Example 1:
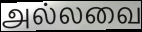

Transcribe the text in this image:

அல்லவை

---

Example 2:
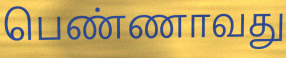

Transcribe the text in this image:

பெண்ணாவது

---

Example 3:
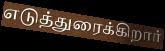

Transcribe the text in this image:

எடுத்துரைக்கிறார்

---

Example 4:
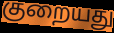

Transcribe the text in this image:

குறையது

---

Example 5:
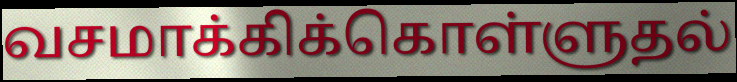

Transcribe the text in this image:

வசமாக்கிக்கொள்ளுதல்